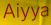
Aiyya